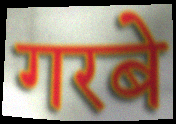
गरबे